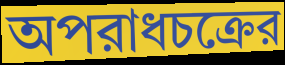
অপরাধচক্রের